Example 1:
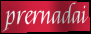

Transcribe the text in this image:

prernadai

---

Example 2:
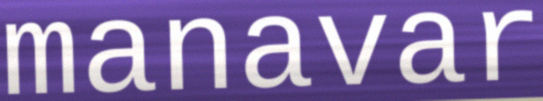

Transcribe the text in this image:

manavar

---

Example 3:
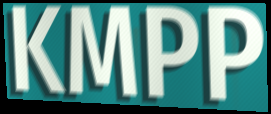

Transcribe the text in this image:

KMPP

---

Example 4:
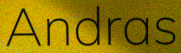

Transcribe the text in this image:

Andras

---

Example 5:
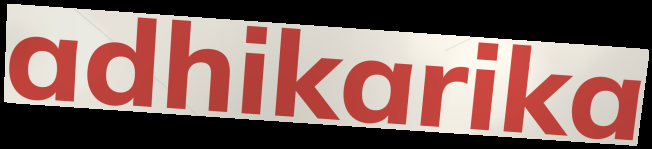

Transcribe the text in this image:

adhikarika